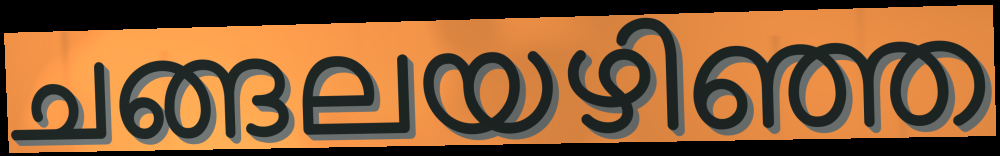
ചങ്ങലയഴിഞ്ഞ